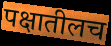
पक्षातीलच